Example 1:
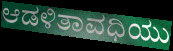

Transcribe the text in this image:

ಆಡಳಿತಾವಧಿಯು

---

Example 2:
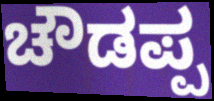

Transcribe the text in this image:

ಚೌಡಪ್ಪ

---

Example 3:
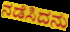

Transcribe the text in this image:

ನಡೆಸಿದನು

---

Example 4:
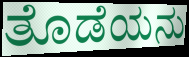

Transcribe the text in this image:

ತೊಡೆಯನು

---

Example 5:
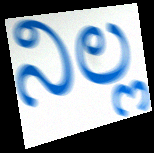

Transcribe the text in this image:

ನಿಲ್ಲ